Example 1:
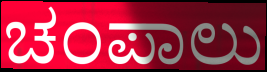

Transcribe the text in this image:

ಚಂಪಾಲು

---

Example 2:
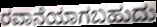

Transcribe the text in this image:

ರವಾನೆಯಾಗಬಹುದು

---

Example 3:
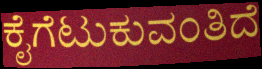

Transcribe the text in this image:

ಕೈಗೆಟುಕುವಂತಿದೆ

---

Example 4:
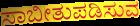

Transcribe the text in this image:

ಸಾಬೀತುಪಡಿಸುವ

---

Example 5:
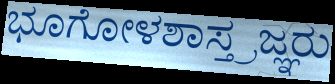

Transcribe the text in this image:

ಭೂಗೋಳಶಾಸ್ತ್ರಜ್ಞರು